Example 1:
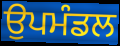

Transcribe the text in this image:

ਉਪਮੰਡਲ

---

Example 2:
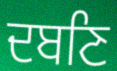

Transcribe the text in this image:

ਦਬਣਿ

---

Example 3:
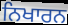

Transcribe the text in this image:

ਨਿਖਾਰਨ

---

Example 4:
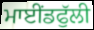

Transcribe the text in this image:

ਮਾਈਂਡਫੁੱਲੀ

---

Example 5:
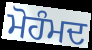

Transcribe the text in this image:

ਮੋਹੰਮਦ